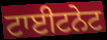
ਟਾਈਟਨੇਟ